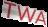
TWA